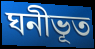
ঘনীভূত